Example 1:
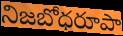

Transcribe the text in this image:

నిజబోధరూపా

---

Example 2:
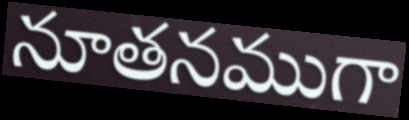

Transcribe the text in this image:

నూతనముగా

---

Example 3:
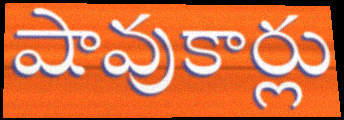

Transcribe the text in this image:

షావుకార్లు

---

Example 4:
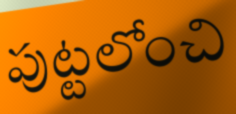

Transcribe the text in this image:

పుట్టలోంచి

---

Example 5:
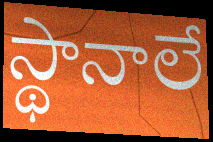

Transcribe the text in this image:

స్థానాలే